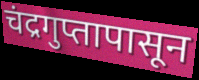
चंद्रगुप्तापासून